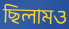
ছিলামও